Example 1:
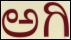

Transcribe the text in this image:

ಅಗಿ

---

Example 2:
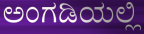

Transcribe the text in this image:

ಅಂಗಡಿಯಲ್ಲಿ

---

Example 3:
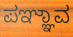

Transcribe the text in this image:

ಪಞ್ಞಾವ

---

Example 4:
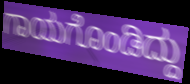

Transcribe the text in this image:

ಗಾಯಗೊಂಡಿದ್ದು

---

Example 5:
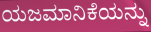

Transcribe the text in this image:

ಯಜಮಾನಿಕೆಯನ್ನು